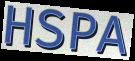
HSPA